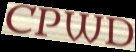
CPWD